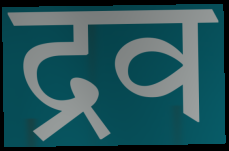
द्रव